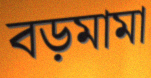
বড়মামা